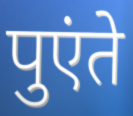
पुएंते